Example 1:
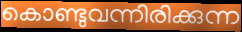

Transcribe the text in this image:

കൊണ്ടുവന്നിരിക്കുന്ന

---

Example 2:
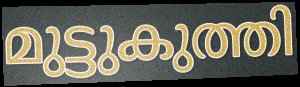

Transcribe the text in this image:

മുട്ടുകുത്തി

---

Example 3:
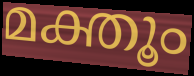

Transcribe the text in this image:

മക്തൂം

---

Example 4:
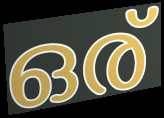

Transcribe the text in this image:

ഒര്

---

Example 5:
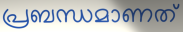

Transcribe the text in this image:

പ്രബന്ധമാണത്